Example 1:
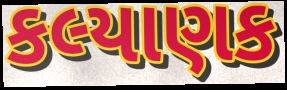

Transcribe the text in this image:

કલ્યાણક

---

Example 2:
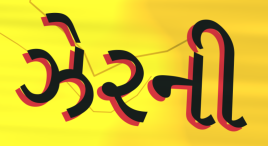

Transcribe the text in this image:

ઝેરની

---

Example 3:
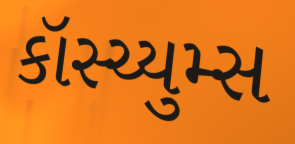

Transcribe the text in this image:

કૉસ્ચ્યુમ્સ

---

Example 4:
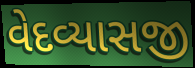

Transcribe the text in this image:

વેદવ્યાસજી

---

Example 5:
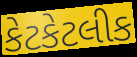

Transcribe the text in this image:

કેટકેટલીક